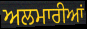
ਅਲਮਾਰੀਆਂ